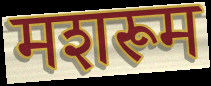
मशरूम